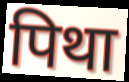
पिथा